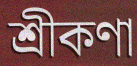
শ্রীকণা